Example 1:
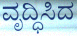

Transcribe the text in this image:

ವೃದ್ಧಿಸಿದ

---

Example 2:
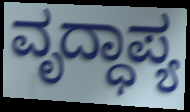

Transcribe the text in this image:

ವೃದ್ಧಾಪ್ಯ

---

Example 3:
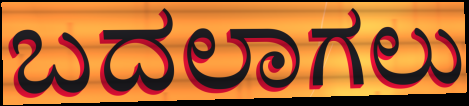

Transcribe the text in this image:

ಬದಲಾಗಲು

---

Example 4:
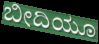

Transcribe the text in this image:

ಬೀದಿಯೂ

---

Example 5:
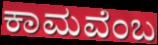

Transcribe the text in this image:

ಕಾಮವೆಂಬ